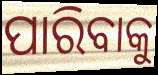
ପାରିବାକୁ